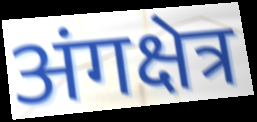
अंगक्षेत्र